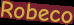
Robeco